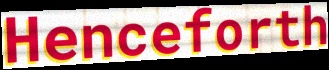
Henceforth